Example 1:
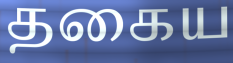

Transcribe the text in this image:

தகைய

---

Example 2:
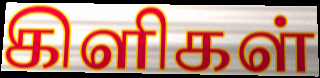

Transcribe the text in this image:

கிளிகள்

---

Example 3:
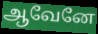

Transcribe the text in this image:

ஆவேனே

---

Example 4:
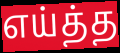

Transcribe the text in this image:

எய்த்த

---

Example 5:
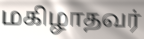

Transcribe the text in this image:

மகிழாதவர்